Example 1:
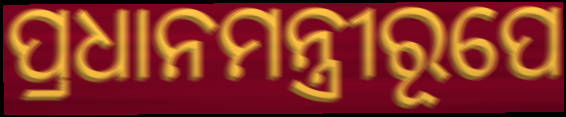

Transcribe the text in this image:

ପ୍ରଧାନମନ୍ତ୍ରୀରୂପେ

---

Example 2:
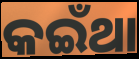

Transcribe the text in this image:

କଇଁଥା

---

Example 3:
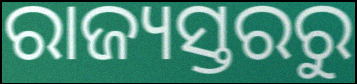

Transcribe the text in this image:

ରାଜ୍ୟସ୍ତରରୁ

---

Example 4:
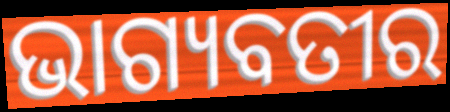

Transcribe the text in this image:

ଭାଗ୍ୟବତୀର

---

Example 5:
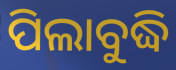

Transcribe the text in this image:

ପିଲାବୁଦ୍ଧି